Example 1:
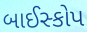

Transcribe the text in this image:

બાઈસ્કોપ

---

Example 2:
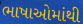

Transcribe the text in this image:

ભાષાઓમાંથી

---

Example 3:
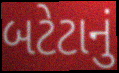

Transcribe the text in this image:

બટેટાનું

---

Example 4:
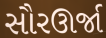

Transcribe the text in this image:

સૌરઊર્જા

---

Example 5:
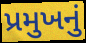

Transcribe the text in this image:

પ્રમુખનું